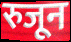
रुजून